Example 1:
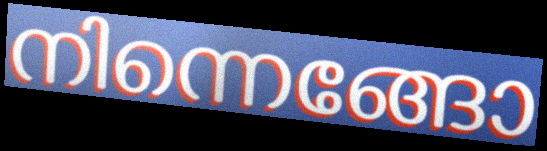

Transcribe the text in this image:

നിന്നെങ്ങോ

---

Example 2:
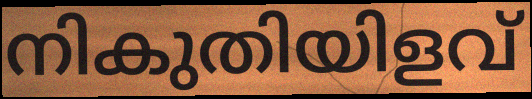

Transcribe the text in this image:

നികുതിയിളവ്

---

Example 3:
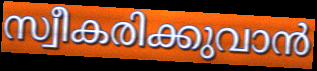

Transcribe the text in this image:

സ്വീകരിക്കുവാൻ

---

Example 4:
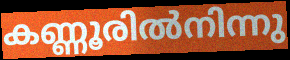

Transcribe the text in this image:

കണ്ണൂരിൽനിന്നു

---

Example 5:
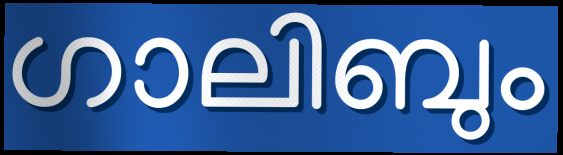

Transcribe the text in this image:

ഗാലിബും